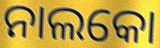
ନାଲକୋ